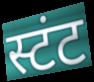
स्टंट